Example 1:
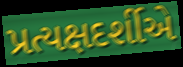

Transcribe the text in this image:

પ્રત્યક્ષદર્શીએ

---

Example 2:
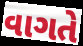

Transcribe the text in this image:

વાગતે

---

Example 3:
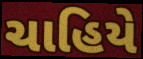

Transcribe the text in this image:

ચાહિયે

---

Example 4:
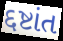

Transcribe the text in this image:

દ્દષ્ટાંત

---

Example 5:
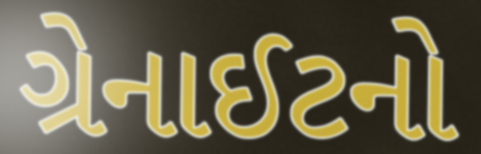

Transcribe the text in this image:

ગ્રેનાઈટનો